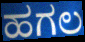
ಹಗಲ